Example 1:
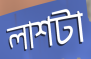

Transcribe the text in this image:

লাশটা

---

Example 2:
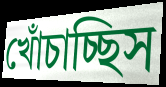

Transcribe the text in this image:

খোঁচাচ্ছিস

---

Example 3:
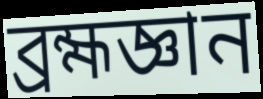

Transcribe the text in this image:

ব্রহ্মজ্ঞান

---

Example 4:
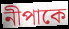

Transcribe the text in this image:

নীপাকে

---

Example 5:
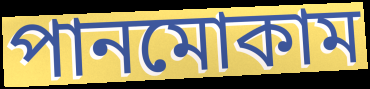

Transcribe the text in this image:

পানমোকাম